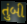
તુંબી